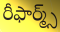
రీఫార్మ్స్